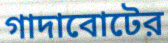
গাদাবোটের